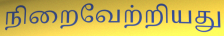
நிறைவேற்றியது